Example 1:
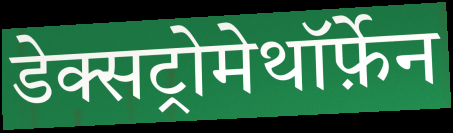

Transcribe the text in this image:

डेक्सट्रोमेथॉर्फ़ेन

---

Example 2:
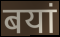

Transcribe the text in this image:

बयां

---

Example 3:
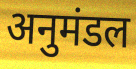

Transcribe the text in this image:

अनुमंडल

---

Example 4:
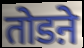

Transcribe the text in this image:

तोडऩे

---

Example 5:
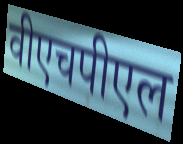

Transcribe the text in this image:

वीएचपीएल